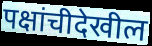
पक्षांचीदेखील